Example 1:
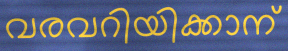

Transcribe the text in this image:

വരവറിയിക്കാന്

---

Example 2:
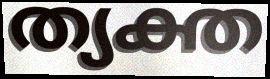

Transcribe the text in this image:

ത്യക്ത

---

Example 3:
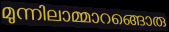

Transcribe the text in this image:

മുന്നിലാമ്മാറങ്ങൊരു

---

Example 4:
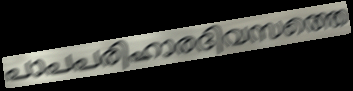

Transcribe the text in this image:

പാപപരിഹാരദിവസത്തെ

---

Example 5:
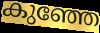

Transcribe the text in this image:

കുഞ്ഞേ